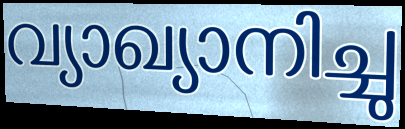
വ്യാഖ്യാനിച്ചു